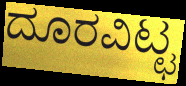
ದೂರವಿಟ್ಟ